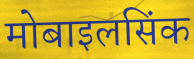
मोबाइलसिंक